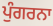
ਪੁੰਗਰਨਾ